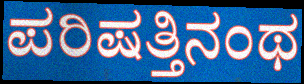
ಪರಿಷತ್ತಿನಂಥ